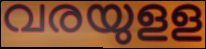
വരയുളള